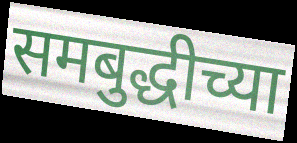
समबुद्धीच्या